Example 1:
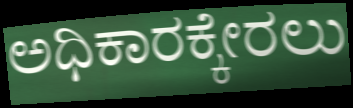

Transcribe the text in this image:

ಅಧಿಕಾರಕ್ಕೇರಲು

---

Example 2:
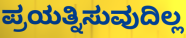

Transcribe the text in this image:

ಪ್ರಯತ್ನಿಸುವುದಿಲ್ಲ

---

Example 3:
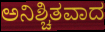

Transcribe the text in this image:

ಅನಿಶ್ಚಿತವಾದ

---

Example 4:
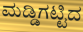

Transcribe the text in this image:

ಮಡ್ಡಿಗಟ್ಟಿದ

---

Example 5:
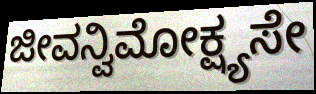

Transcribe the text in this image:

ಜೀವನ್ವಿಮೋಕ್ಷ್ಯಸೇ